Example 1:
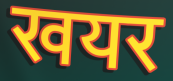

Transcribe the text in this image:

खयर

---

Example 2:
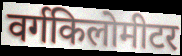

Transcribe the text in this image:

वर्गकिलोमीटर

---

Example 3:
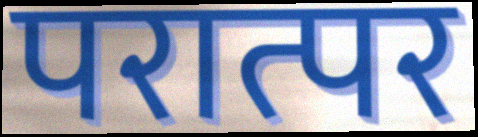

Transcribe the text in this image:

परात्‍पर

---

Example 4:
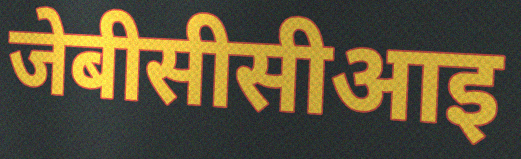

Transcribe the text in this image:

जेबीसीसीआइ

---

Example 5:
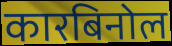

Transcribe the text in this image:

कारबिनोल